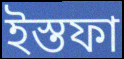
ইস্তফা